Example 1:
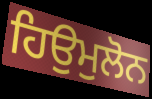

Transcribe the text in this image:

ਹਿਉਮੁਲੋਨ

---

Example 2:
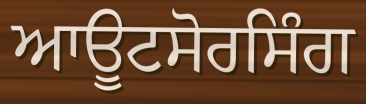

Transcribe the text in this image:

ਆਊਟਸੋਰਸਿੰਗ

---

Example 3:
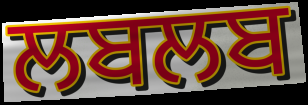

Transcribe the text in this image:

ਲਬਲਬ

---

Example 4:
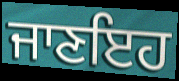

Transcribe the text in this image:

ਜਾਣਇਹ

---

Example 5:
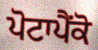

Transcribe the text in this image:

ਪੋਟਾਪੈਂਕੋ